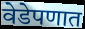
वेडेपणात